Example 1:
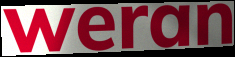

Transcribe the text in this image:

weran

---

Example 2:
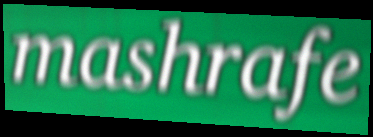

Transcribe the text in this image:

mashrafe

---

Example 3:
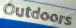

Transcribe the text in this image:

Outdoors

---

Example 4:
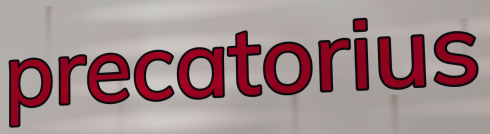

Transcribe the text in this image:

precatorius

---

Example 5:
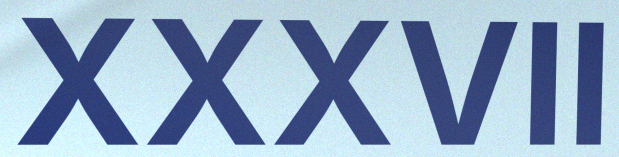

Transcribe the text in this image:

XXXVII